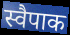
स्वैपाक